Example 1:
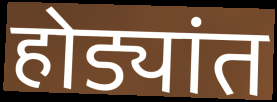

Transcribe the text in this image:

होड्यांत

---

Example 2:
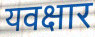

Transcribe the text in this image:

यवक्षार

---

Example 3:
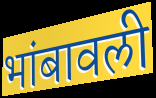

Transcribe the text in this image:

भांबावली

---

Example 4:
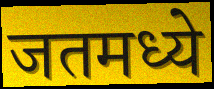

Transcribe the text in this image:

जतमध्ये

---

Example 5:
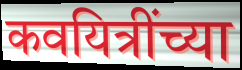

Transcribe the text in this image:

कवयित्रींच्या